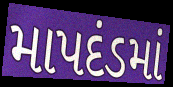
માપદંડમાં